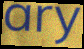
ary